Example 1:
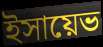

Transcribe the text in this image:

ইসায়েভ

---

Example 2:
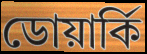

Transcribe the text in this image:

ডোয়ার্কি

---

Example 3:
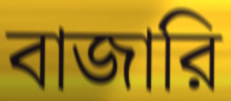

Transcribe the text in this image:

বাজারি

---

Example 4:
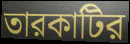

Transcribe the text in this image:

তারকাটির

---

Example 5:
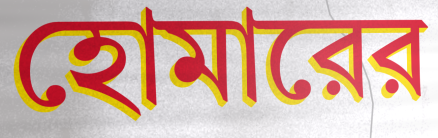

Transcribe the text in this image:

হোমারের